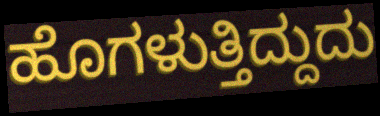
ಹೊಗಳುತ್ತಿದ್ದುದು